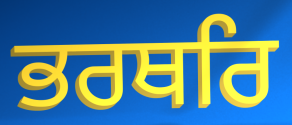
ਭਰਥਰਿ